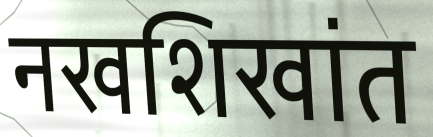
नखशिखांत